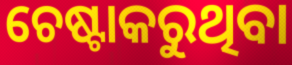
ଚେଷ୍ଟାକରୁଥିବା